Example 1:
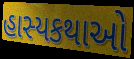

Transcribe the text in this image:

હાસ્યકથાઓ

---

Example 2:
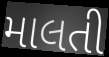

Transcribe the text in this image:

માલતી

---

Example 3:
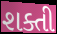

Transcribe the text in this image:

શક્તી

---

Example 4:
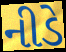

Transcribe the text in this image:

નીડે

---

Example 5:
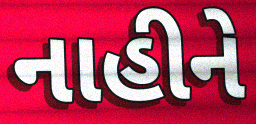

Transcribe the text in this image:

નાહીને